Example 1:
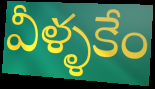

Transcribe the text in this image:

వీళ్ళకేం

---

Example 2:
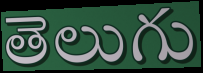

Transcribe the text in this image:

తెలుగు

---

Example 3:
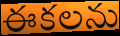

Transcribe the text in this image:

ఈకలను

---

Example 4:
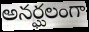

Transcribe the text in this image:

అనర్ఘలంగా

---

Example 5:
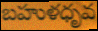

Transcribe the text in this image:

బహుళధృవ